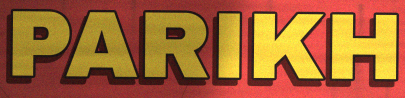
PARIKH